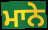
ਮਾਨੇ